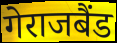
गेराजबैंड